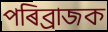
পৰিব্ৰাজক